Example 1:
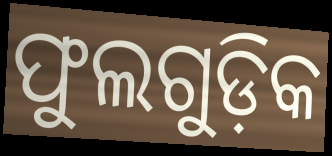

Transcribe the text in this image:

ଫୁଲଗୁଡ଼ିକ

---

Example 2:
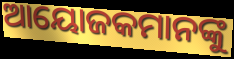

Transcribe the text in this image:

ଆୟୋଜକମାନଙ୍କୁ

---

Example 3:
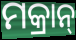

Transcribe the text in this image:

ମକ୍ରାନ୍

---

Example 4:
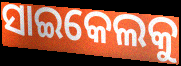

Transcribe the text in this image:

ସାଇକେଲକୁ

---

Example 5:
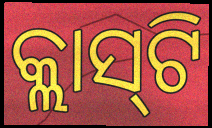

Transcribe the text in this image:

କ୍ଲାସ୍‌ଟି